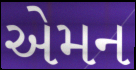
એમન